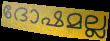
ദോഷമല്ല